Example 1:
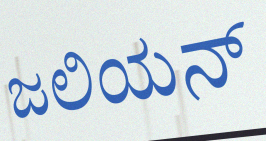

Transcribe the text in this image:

ಜಲಿಯನ್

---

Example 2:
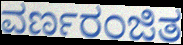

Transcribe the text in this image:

ವರ್ಣರಂಜಿತ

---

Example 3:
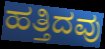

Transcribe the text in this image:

ಹತ್ತಿದವು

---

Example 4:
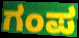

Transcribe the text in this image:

ಗಂಪ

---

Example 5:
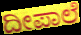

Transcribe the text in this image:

ದೀಪಾಲೆ